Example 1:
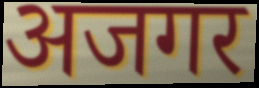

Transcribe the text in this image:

अजगर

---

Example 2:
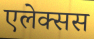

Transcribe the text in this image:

एलेक्सस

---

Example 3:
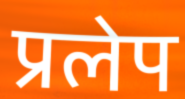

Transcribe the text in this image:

प्रलेप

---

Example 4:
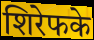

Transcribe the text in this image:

शिरेफके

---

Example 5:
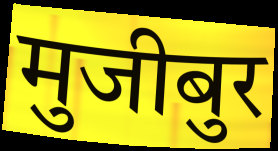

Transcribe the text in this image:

मुजीबुर